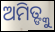
ଅମିତ୍ଙ୍କୁ